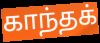
காந்தக்